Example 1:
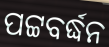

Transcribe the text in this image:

ପଟ୍ଟବର୍ଦ୍ଧନ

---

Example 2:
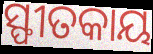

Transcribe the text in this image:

ସ୍ଫୀତକାୟ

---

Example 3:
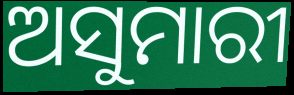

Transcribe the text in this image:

ଅସୁମାରୀ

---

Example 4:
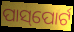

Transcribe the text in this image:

ପାସ୍‌ପୋର୍ଟ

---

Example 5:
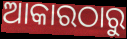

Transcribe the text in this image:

ଆକାରଠାରୁ